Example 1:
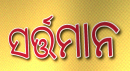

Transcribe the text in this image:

ସର୍ତ୍ତମାନ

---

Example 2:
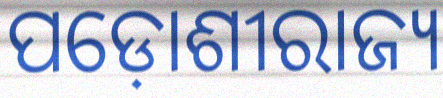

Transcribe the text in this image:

ପଡ଼ୋଶୀରାଜ୍ୟ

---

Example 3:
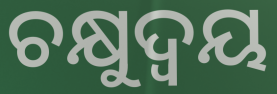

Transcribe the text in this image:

ଚକ୍ଷୁଦ୍ଵୟ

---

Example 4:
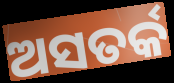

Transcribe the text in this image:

ଅସତର୍କ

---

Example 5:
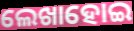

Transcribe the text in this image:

ଲେଖାହୋଇ